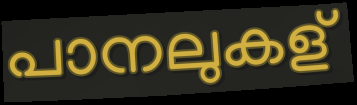
പാനലുകള്